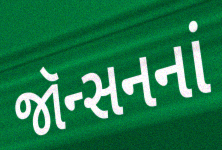
જૉન્સનનાં